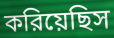
করিয়েছিস